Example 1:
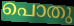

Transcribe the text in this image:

പൊതു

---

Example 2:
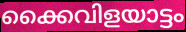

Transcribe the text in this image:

ക്കൈവിളയാട്ടം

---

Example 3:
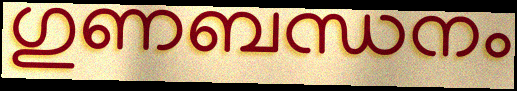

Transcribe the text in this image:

ഗുണബന്ധനം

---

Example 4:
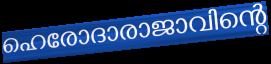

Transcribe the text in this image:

ഹെരോദാരാജാവിന്റെ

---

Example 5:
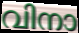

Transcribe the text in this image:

വിനാ